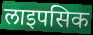
लाइपसिक